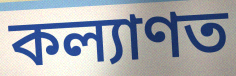
কল্যাণত